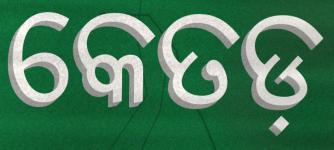
କେତଡ଼